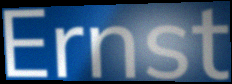
Ernst